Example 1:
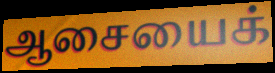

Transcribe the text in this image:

ஆசையைக்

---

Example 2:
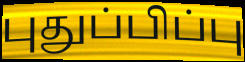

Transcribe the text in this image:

புதுப்பிப்பு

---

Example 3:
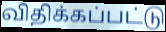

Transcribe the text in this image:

விதிக்கப்பட்டு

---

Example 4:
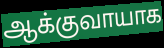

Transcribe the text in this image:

ஆக்குவாயாக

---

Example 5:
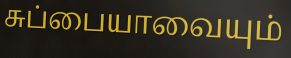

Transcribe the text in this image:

சுப்பையாவையும்